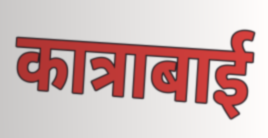
कात्राबाई